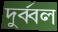
দুৰ্ব্বল